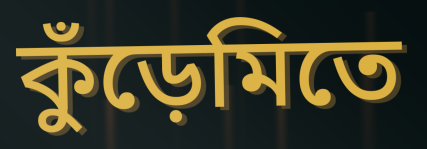
কুঁড়েমিতে